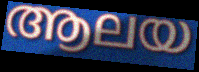
ആലയ